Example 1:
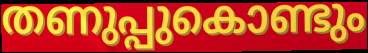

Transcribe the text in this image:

തണുപ്പുകൊണ്ടും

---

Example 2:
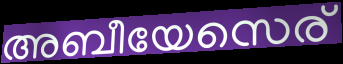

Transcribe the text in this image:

അബീയേസെര്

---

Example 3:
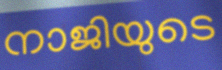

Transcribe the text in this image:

നാജിയുടെ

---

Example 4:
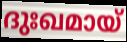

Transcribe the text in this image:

ദുഃഖമായ്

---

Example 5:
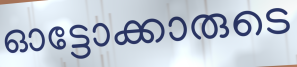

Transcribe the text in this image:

ഓട്ടോക്കാരുടെ